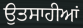
ਉਤਸਾਹੀਆਂ